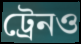
ট্রেনও